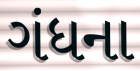
ગંધના